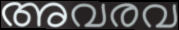
അവരവ